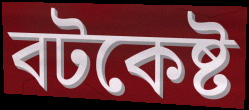
বটকেষ্ট